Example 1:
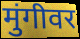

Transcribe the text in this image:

मुंगीवर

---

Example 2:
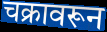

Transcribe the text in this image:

चक्रावरून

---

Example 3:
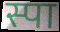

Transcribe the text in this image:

स्पा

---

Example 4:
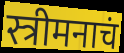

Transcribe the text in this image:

स्त्रीमनाचं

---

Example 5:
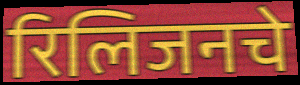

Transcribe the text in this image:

रिलिजनचे